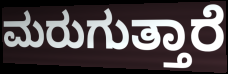
ಮರುಗುತ್ತಾರೆ